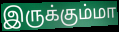
இருக்கும்மா